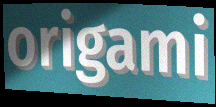
origami